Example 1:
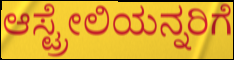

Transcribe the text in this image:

ಆಸ್ಟ್ರೇಲಿಯನ್ನರಿಗೆ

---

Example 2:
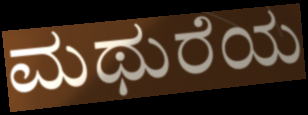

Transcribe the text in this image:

ಮಥುರೆಯ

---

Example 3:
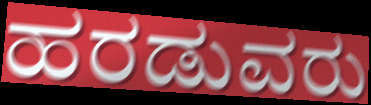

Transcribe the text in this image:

ಹರಡುವರು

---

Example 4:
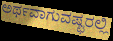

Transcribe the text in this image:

ಅರ್ಥವಾಗುವಷ್ಟರಲ್ಲಿ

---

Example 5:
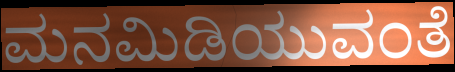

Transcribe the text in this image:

ಮನಮಿಡಿಯುವಂತೆ